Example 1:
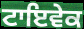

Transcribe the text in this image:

ਟਾਇਵੇਕ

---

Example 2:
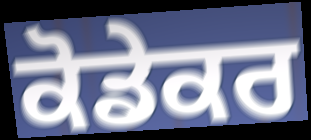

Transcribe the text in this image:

ਕੋਡੇਕਰ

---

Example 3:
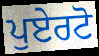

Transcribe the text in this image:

ਪੁਏਰਟੋ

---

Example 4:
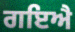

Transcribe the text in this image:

ਗਇਐ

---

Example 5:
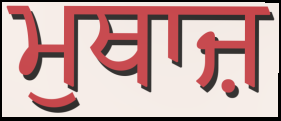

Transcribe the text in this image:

ਮੁਥਾਜ਼